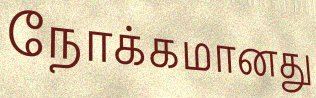
நோக்கமானது